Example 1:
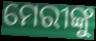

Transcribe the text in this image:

ମେରୀଙ୍କୁ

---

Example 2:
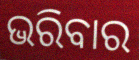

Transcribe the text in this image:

ଭରିବାର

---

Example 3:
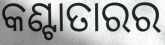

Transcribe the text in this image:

କଣ୍ଟାତାରର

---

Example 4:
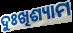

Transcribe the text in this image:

ଦୁଃଖିଶ୍ୟାମ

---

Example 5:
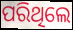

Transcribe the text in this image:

ପରିଥିଲେ